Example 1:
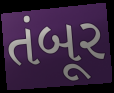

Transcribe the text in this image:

તંબૂર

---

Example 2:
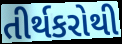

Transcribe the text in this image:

તીર્થકરોથી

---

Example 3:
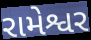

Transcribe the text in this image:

રામેશ્વર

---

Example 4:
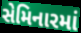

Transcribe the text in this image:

સેમિનારમાં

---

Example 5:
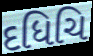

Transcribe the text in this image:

દધિચિ